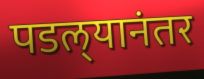
पडल्यानंतर